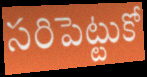
సరిపెట్టుకో